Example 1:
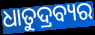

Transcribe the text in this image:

ଧାତୁଦ୍ରବ୍ୟର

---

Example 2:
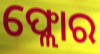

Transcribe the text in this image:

ଫ୍ଲୋର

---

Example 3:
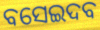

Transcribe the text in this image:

ବସେଇଦବ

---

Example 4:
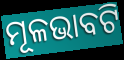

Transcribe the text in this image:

ମୂଳଭାବଟି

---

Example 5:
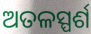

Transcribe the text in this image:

ଅତଳସ୍ପର୍ଶ